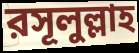
রসূলুল্লাহ